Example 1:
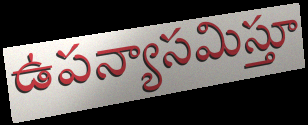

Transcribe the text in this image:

ఉపన్యాసమిస్తూ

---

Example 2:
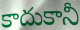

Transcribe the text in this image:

కాదుకానీ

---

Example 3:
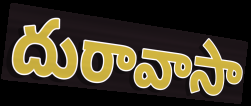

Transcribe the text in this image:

దురావాసా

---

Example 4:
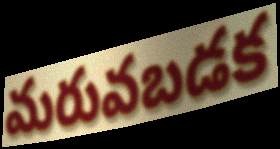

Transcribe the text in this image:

మరువబడక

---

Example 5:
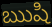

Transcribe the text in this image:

ఋషి